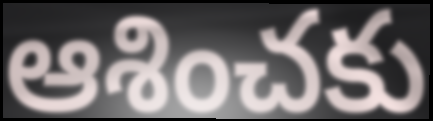
ఆశించకు